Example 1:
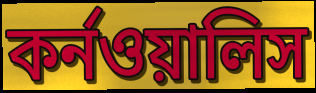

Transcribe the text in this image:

কর্নওয়ালিস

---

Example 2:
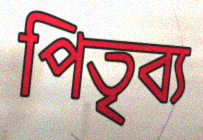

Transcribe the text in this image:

পিতৃব্য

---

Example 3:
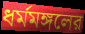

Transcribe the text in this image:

ধর্মমঙ্গলের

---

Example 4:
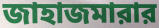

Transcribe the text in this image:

জাহাজমারার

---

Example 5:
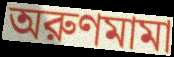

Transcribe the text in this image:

অরুণমামা